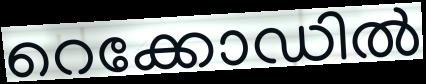
റെക്കോഡിൽ